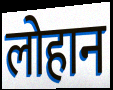
लोहान